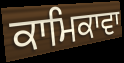
ਕਾਮਿਕਾਵਾ